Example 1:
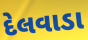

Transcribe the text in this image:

દેલવાડા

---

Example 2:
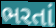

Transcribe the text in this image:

ભરતાં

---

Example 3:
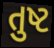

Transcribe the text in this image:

તુષ્ટ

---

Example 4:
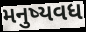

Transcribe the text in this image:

મનુષ્યવધ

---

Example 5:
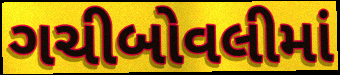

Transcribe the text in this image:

ગચીબોવલીમાં